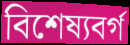
বিশেষ্যবর্গ